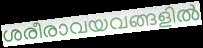
ശരീരാവയവങ്ങളിൽ